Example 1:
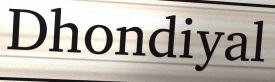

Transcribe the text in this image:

Dhondiyal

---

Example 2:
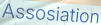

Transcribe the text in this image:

Assosiation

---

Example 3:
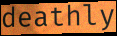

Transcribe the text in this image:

deathly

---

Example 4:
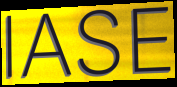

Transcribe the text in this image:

IASE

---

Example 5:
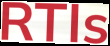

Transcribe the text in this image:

RTIs